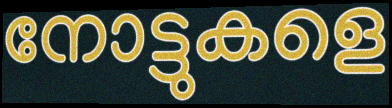
നോട്ടുകളെ